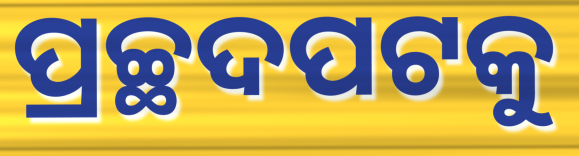
ପ୍ରଚ୍ଛଦପଟକୁ